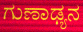
ಗುಣಾಢ್ಯನ